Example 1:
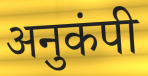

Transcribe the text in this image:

अनुकंपी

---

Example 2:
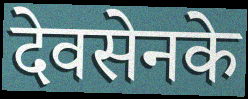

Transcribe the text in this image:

देवसेनके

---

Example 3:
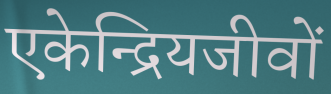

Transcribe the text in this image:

एकेन्द्रियजीवों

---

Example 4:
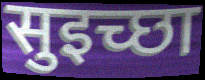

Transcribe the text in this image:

सुइच्छा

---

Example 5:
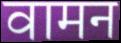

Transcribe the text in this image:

वामन